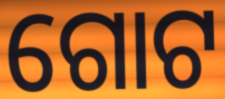
ଗୋଟ